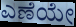
ಎಣೆಯೇ